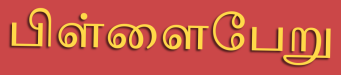
பிள்ளைபேறு